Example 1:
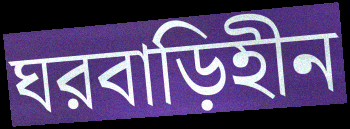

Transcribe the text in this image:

ঘরবাড়িহীন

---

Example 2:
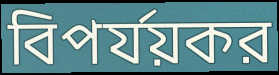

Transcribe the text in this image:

বিপর্যয়কর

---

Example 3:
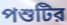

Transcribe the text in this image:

পশুটির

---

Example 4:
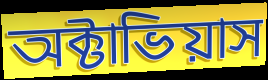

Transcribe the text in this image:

অক্টাভিয়াস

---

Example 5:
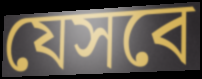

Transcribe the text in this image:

যেসবে